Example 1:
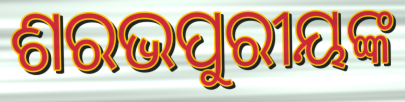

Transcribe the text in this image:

ଶରଭପୁରୀୟଙ୍କ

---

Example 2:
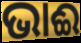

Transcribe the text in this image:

ଭାଈ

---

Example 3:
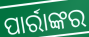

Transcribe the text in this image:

ପାର୍ରାଙ୍କର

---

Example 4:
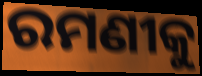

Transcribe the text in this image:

ରମଣୀକୁ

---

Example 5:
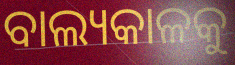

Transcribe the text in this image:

ବାଲ୍ୟକାଳକୁ